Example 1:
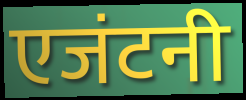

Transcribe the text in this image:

एजंटनी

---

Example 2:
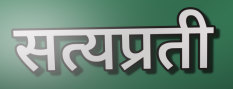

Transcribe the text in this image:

सत्यप्रती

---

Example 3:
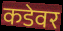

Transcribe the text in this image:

कडेवर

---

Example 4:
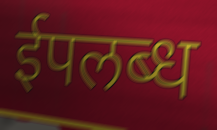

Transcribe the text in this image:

ईपलब्ध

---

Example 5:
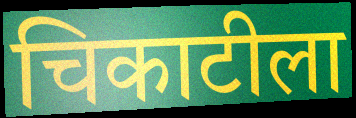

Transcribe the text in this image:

चिकाटीला